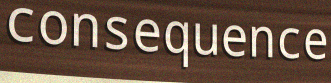
consequence